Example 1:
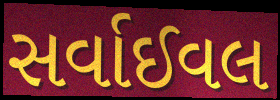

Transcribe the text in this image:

સર્વાઈવલ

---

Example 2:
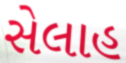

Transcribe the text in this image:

સેલાહ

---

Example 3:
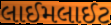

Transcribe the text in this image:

લાઈમલાઈટ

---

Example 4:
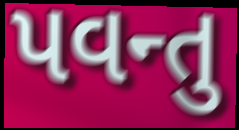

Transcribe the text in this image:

પવન્તુ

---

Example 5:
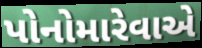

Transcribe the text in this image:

પોનોમારેવાએ